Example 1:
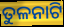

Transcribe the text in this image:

ତୁଳନାଟି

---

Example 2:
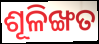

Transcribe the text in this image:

ଶୂଳିଙ୍ଖତ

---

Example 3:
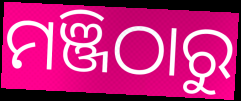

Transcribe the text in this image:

ମଞ୍ଜିଠାରୁ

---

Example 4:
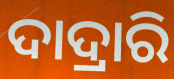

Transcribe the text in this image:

ଦାଦ୍ରାରି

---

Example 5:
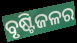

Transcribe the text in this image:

ବୃଷ୍ଟିଜଳର